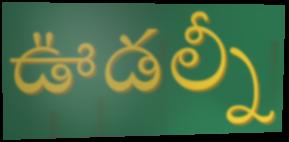
ఊడల్నీ